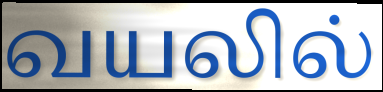
வயலில்